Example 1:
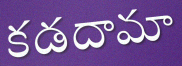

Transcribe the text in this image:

కడదామా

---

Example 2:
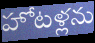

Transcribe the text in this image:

హోటళ్లను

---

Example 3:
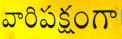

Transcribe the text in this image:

వారిపక్షంగా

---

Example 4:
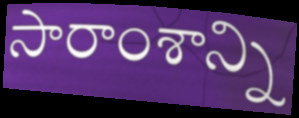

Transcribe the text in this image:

సారాంశాన్ని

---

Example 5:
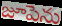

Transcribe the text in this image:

జూపెను